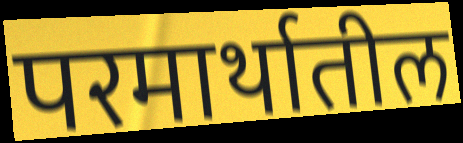
परमार्थातील